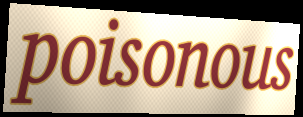
poisonous